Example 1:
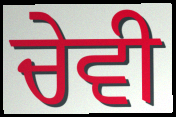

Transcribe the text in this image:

ਚੇਵੀ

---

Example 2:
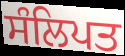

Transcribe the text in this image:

ਸੰਲਿਪਤ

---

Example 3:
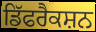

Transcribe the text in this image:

ਡਿੱਫਰੈਕਸ਼ਨ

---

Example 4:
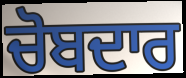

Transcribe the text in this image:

ਚੋਬਦਾਰ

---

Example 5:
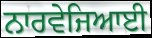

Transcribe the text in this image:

ਨਾਰਵੇਜਿਆਈ